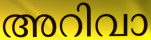
അറിവാ